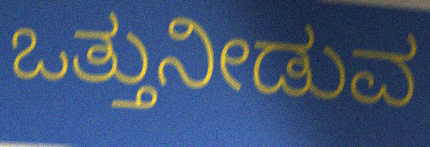
ಒತ್ತುನೀಡುವ